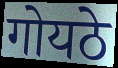
गोयठे